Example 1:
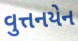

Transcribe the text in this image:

વુત્તનયેન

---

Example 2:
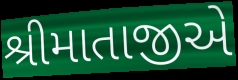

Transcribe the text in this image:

શ્રીમાતાજીએ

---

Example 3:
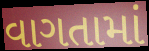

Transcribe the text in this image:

વાગતામાં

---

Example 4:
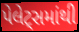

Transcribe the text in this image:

પેલેટ્સમાંથી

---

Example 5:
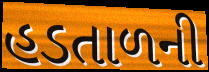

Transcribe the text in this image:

હડતાળની